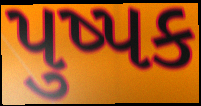
પુષ્પક